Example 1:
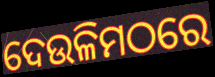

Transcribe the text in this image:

ଦେଉଳିମଠରେ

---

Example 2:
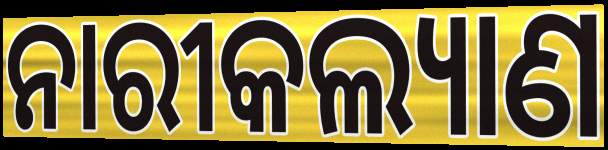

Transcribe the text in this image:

ନାରୀକଲ୍ୟାଣ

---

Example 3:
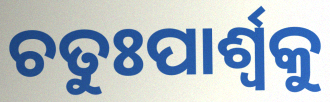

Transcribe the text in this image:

ଚତୁଃପାର୍ଶ୍ୱକୁ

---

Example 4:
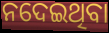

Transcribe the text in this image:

ନଦେଇଥିବା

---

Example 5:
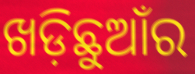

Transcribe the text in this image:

ଖଡ଼ିଛୁଆଁର